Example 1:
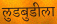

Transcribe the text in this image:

लुडबुडीला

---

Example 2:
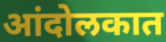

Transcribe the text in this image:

आंदोलकात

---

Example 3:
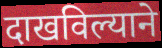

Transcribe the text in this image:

दाखविल्याने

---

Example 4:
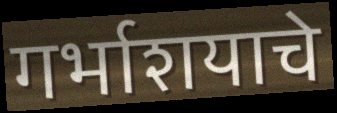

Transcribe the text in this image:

गर्भाशयाचे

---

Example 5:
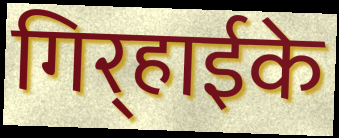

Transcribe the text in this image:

गिर्‍हाईके